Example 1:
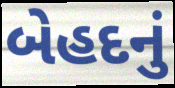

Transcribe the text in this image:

બેહદનું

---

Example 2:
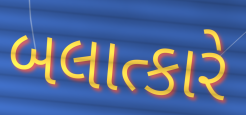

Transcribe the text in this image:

બલાત્કારે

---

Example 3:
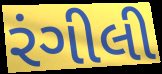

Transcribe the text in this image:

રંગીલી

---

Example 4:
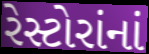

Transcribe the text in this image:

રેસ્ટોરાંનાં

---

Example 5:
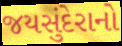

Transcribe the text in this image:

જયસુંદેરાનો